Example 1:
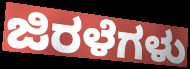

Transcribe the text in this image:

ಜಿರಳೆಗಳು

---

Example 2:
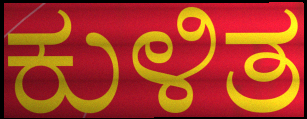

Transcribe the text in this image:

ಕುಳಿತ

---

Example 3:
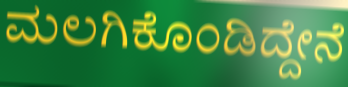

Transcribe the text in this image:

ಮಲಗಿಕೊಂಡಿದ್ದೇನೆ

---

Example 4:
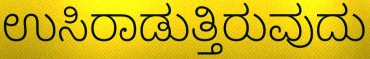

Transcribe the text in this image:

ಉಸಿರಾಡುತ್ತಿರುವುದು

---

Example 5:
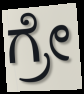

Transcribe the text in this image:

ಗ್ರೇ